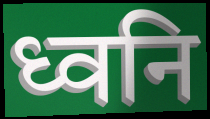
ध्‍वनि